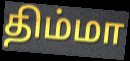
திம்மா